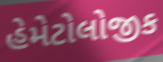
હેમેટોલોજીક